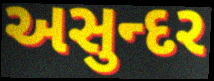
અસુન્દર